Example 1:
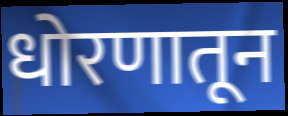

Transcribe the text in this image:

धोरणातून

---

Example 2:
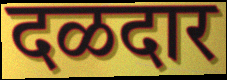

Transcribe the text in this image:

दळदार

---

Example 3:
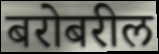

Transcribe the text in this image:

बरोबरील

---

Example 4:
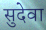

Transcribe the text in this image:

सुदेवा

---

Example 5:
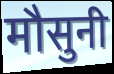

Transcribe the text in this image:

मौसुनी